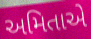
અમિતાએ